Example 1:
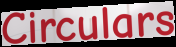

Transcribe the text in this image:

Circulars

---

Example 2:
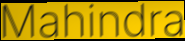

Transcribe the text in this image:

Mahindra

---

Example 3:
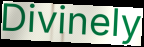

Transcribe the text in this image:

Divinely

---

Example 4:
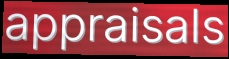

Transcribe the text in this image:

appraisals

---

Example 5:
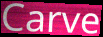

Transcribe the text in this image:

Carve